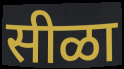
सीळा